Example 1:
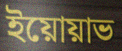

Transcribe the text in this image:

ইয়োয়াভ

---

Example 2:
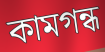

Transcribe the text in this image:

কামগন্ধ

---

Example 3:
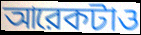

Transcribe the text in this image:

আরেকটাও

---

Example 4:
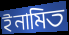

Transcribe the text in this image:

ইনামিত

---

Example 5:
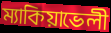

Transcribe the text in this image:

ম্যাকিয়াভেলী